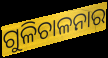
ଗୁଳିଚାଳନାର